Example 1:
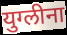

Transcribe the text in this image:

युग्लीना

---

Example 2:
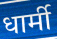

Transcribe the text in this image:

धार्मी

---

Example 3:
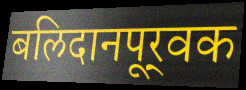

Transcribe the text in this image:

बलिदानपूर्वक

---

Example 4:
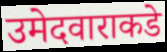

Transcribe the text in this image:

उमेदवाराकडे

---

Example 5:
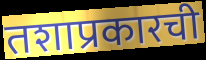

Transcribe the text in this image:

तशाप्रकारची